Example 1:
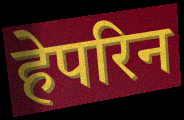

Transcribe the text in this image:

हेपरिन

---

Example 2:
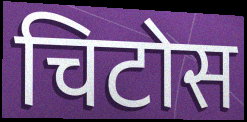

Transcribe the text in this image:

चिटोस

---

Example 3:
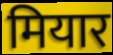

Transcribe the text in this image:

मियार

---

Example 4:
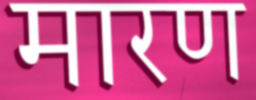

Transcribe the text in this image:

मारण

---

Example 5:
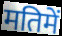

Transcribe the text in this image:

मतिमें